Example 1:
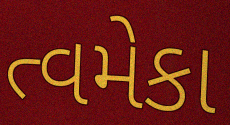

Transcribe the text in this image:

ત્વમેકા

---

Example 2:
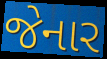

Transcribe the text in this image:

જેનાર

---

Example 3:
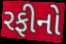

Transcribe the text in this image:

રફીનો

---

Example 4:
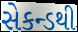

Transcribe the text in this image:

સેકન્ડથી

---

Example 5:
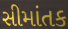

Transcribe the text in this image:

સીમાંતક